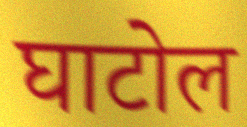
घाटोल